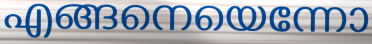
എങ്ങനെയെന്നോ